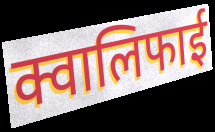
क्वालिफाई